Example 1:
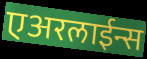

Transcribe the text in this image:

एअरलाईन्स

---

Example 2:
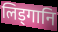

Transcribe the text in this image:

लिड्गानि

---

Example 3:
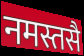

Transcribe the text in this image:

नमस्तसै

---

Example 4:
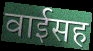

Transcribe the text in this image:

वाईसह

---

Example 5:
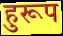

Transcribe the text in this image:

हुरूप